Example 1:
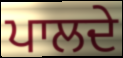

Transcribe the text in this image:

ਪਾਲਦੇ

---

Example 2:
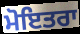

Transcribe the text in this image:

ਮੋਇਤਰਾ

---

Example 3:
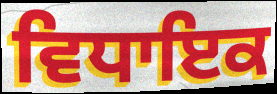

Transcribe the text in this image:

ਵਿਧਾਇਕ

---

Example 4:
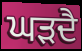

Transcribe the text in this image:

ਘੜਦੈ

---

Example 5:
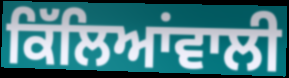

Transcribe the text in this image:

ਕਿੱਲਿਆਂਵਾਲੀ